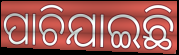
ପାଚିଯାଇଛି